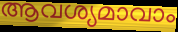
ആവശ്യമാവാം